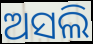
ଅସଲି